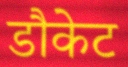
डौकेट